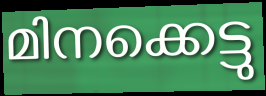
മിനക്കെട്ടു